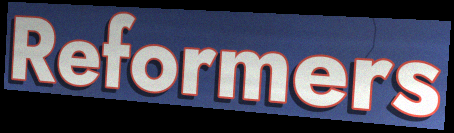
Reformers